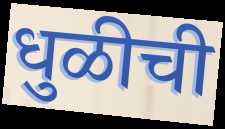
धुळीची